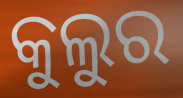
କୁଲୁର